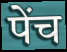
पेंच